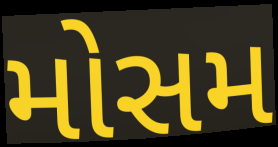
મોસમ